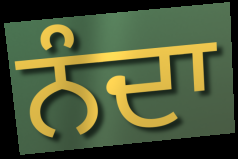
ਨੰਦਾ